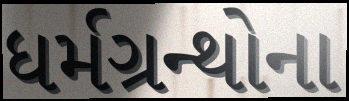
ધર્મગ્રન્થોના